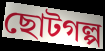
ছোটগল্প